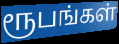
ரூபங்கள்